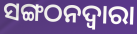
ସଙ୍ଗଠନଦ୍ୱାରା